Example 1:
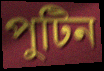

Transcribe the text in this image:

পুটিন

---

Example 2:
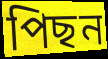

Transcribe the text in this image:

পিছন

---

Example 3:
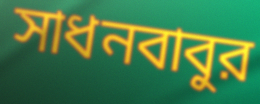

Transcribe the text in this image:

সাধনবাবুর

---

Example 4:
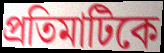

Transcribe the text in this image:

প্রতিমাটিকে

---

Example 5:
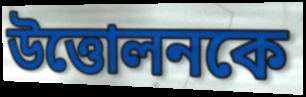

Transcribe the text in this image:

উত্তোলনকে